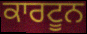
ਕਾਰਟੂਨ